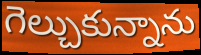
గెల్చుకున్నాను